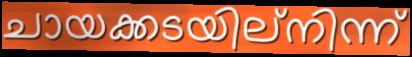
ചായക്കടയില്നിന്ന്